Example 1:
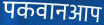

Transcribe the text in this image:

पकवानआप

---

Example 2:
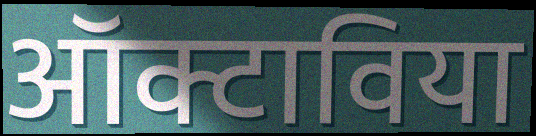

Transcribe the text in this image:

ऑक्टाविया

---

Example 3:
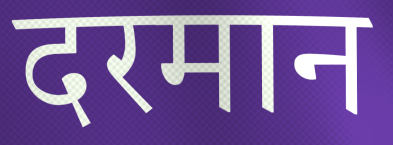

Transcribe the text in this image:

दरमान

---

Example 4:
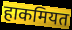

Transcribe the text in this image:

हाकमियत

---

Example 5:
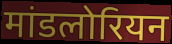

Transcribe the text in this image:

मांडलोरियन